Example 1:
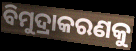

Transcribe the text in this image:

ବିମୁଦ୍ରାକରଣକୁ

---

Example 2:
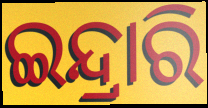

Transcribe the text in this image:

ଇନ୍ଦ୍ରାରି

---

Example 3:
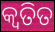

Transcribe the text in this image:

କ୍ୱତିତ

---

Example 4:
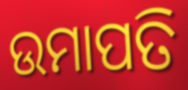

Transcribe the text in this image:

ଉମାପତି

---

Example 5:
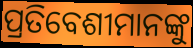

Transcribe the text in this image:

ପ୍ରତିବେଶୀମାନଙ୍କୁ